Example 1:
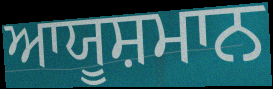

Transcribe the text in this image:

ਆਯੂਸ਼ਮਾਨ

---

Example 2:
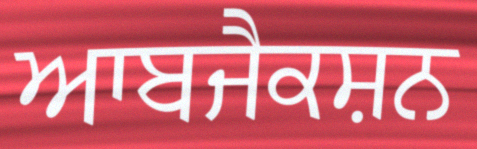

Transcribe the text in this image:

ਆਬਜੈਕਸ਼ਨ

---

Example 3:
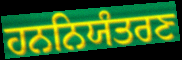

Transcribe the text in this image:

ਹਨਨਿਯੰਤਰਣ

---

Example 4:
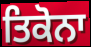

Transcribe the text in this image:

ਤਿਕੋਨਾ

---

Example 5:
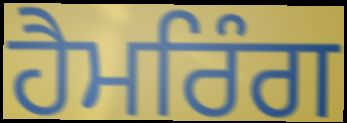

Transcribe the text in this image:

ਹੈਮਰਿੰਗ